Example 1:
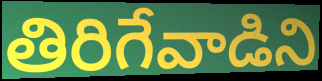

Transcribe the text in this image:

తిరిగేవాడిని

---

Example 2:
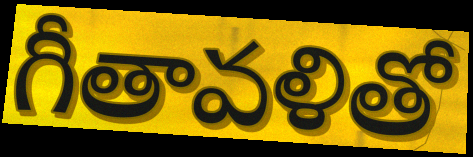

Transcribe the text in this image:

గీతావళితో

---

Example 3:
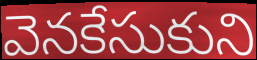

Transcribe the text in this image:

వెనకేసుకుని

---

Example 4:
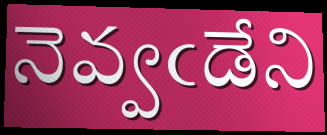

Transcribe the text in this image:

నెవ్వఁడేని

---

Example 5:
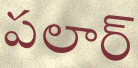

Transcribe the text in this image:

పలార్